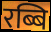
रब्बि